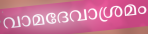
വാമദേവാശ്രമം